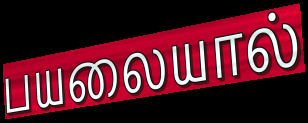
பயலையால்